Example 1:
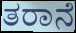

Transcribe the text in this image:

ತರಾನೆ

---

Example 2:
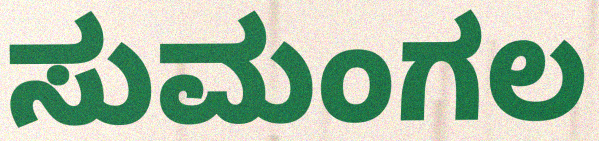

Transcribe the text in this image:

ಸುಮಂಗಲ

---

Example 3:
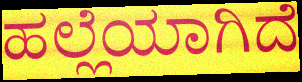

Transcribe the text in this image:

ಹಲ್ಲೆಯಾಗಿದೆ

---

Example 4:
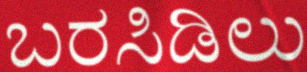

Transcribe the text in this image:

ಬರಸಿಡಿಲು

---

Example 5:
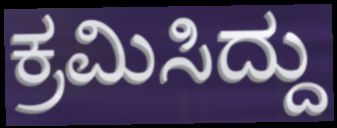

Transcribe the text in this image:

ಕ್ರಮಿಸಿದ್ದು